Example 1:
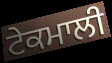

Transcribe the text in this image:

ਟੇਕਮਾਲੀ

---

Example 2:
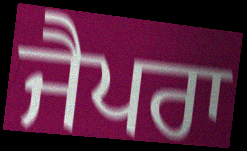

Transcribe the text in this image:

ਜੈਪਰਾ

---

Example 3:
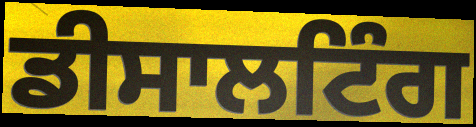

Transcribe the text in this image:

ਡੀਸਾਲਟਿੰਗ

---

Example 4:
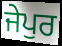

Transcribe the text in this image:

ਜੇਪੁਰ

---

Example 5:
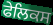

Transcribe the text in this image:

ਫੇਲਿਕਸ